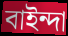
বাইন্দা